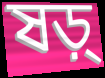
ষড়্